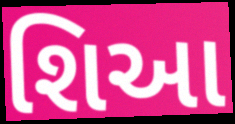
શિઆ